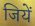
जियें